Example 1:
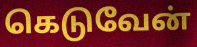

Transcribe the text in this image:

கெடுவேன்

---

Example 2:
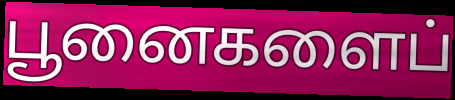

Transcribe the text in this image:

பூனைகளைப்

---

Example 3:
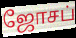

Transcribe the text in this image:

ஜோசப்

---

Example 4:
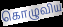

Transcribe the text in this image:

கொழுவிய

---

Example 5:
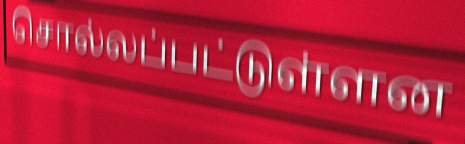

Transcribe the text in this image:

சொல்லப்பட்டுள்ளன